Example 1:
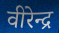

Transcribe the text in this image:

वीरेन्द्र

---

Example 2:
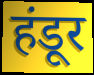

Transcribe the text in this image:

हंडूर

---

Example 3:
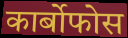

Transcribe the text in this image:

कार्बोफोस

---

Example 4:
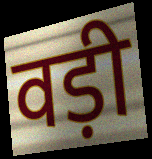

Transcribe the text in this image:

वड़ी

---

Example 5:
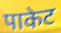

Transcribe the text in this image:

पाकेट